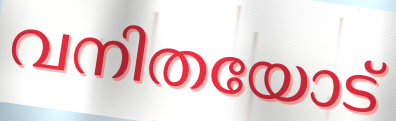
വനിതയോട്